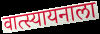
वात्स्यायनाला